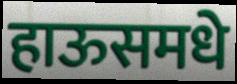
हाऊसमधे